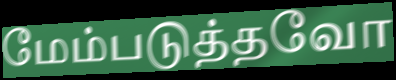
மேம்படுத்தவோ